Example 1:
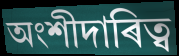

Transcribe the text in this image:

অংশীদাৰিত্ব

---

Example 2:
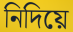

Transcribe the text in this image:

নিদিয়ে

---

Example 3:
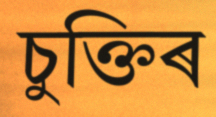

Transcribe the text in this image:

চুক্তিৰ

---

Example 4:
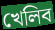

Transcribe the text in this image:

খেলিব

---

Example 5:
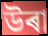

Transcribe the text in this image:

উৰা